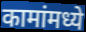
कामांमध्ये